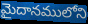
మైదానములోని